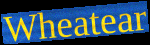
Wheatear